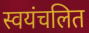
स्वयंचलित